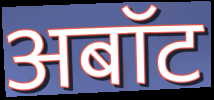
अबॉट